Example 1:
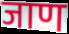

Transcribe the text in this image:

जाण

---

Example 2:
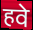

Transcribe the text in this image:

हवे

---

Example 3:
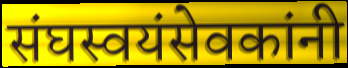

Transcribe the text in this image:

संघस्वयंसेवकांनी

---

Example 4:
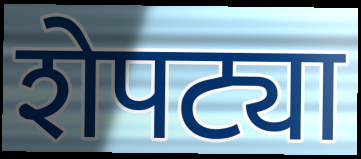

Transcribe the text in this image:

शेपट्या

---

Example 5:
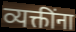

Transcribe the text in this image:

व्यक्तींना